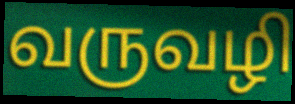
வருவழி